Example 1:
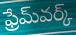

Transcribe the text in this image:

ఫ్రేమ్‌వర్క్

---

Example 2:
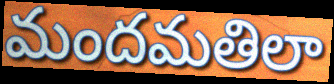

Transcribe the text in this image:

మందమతిలా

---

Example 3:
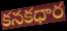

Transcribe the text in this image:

కనకధార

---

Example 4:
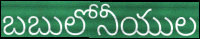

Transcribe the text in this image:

బబులోనీయుల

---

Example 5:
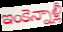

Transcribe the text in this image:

ఇంకెన్నాళ్లీ